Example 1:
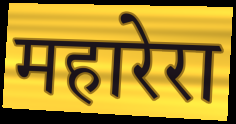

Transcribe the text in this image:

महारेरा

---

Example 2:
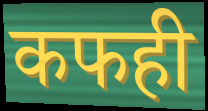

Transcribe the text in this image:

कफही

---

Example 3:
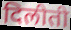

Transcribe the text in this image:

दिलीती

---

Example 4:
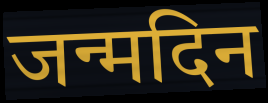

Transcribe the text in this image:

जन्मदिन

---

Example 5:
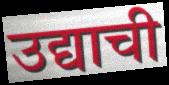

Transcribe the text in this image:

उद्याची